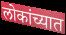
लोकांच्यात